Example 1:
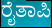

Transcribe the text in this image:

ರೈತಾಪಿ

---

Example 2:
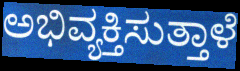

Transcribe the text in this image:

ಅಭಿವ್ಯಕ್ತಿಸುತ್ತಾಳೆ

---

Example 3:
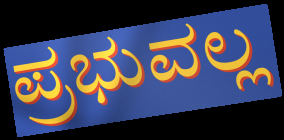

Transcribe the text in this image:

ಪ್ರಭುವಲ್ಲ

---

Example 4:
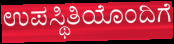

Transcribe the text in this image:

ಉಪಸ್ಥಿತಿಯೊಂದಿಗೆ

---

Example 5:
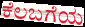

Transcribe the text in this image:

ಕೆಲಬಗೆಯ